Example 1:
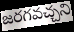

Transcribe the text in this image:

జరగవచ్చని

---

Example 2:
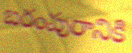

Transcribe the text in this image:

బరంపురానికి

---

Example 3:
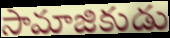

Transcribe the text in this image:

సామాజికుడు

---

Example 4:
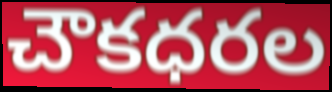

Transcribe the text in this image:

చౌకధరల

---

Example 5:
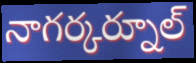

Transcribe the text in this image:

నాగర్కర్నూల్